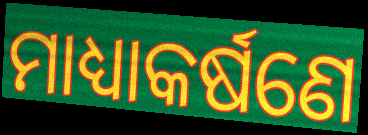
ମାଧ୍ୟାକର୍ଷଣେ